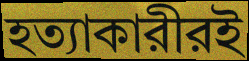
হত্যাকারীরই